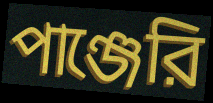
পাঞ্জেরি